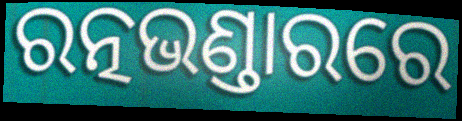
ରତ୍ନଭଣ୍ଡାରରେ